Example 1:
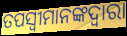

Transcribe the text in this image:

ତପସ୍ୱୀମାନଙ୍କଦ୍ୱାରା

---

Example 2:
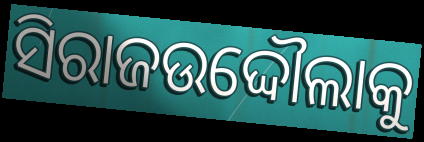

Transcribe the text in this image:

ସିରାଜଉଦ୍ଦୌଲାକୁ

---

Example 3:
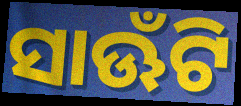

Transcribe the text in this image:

ସାଊଁଟି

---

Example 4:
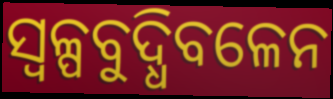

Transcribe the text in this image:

ସ୍ଵଳ୍ପବୁଦ୍ଧିବଳେନ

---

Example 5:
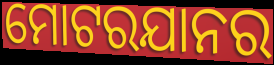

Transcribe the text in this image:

ମୋଟରଯାନର